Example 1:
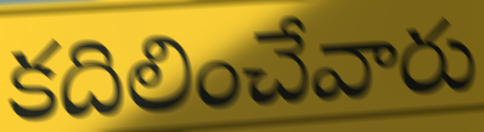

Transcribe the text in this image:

కదిలించేవారు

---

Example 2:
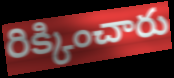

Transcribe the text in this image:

రిక్కించారు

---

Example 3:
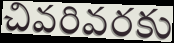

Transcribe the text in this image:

చివరివరకు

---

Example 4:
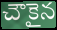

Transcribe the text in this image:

చౌకైన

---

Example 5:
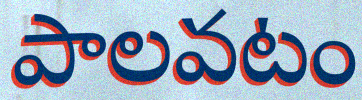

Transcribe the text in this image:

పాలవటం